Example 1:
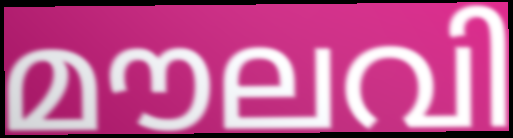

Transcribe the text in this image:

മൗലവി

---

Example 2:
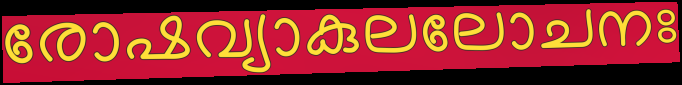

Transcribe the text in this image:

രോഷവ്യാകുലലോചനഃ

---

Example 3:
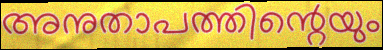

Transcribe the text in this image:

അനുതാപത്തിന്റെയും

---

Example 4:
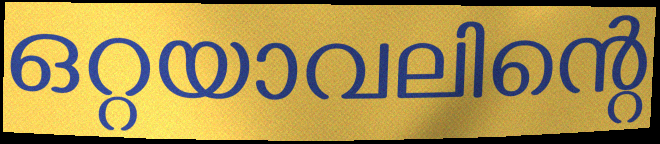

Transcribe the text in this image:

ഒറ്റയാവലിന്റെ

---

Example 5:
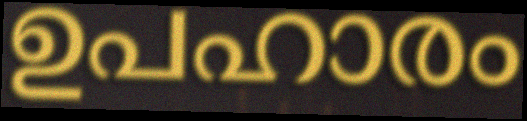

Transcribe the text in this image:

ഉപഹാരം